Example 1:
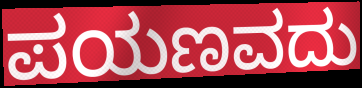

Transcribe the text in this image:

ಪಯಣವದು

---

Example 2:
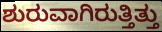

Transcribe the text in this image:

ಶುರುವಾಗಿರುತ್ತಿತ್ತು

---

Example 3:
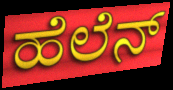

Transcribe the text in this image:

ಹೆಲೆನ್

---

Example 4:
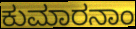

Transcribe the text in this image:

ಕುಮಾರನಾಂ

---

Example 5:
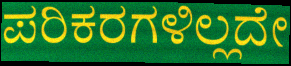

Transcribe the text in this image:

ಪರಿಕರಗಳಿಲ್ಲದೇ